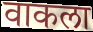
वाकला